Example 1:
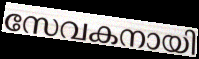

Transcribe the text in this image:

സേവകനായി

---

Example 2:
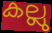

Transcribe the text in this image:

കല്ലു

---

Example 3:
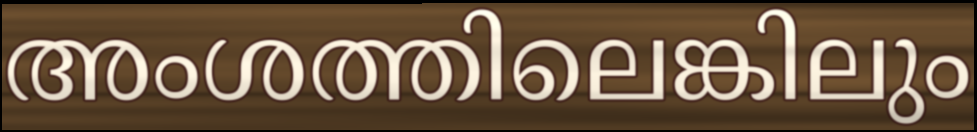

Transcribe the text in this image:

അംശത്തിലെങ്കിലും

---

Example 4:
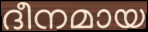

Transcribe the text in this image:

ദീനമായ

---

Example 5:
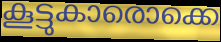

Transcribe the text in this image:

കൂട്ടുകാരൊക്കെ